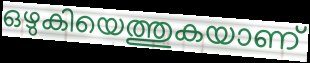
ഒഴുകിയെത്തുകയാണ്